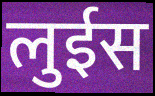
लुईस